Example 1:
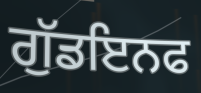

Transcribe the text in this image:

ਗੁੱਡਇਨਫ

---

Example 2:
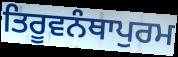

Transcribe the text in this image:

ਤਿਰੂਵਨੰਥਾਪੁਰਮ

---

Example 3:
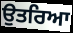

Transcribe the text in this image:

ਉਤਰਿਆ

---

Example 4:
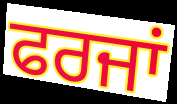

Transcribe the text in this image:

ਫਰਜਾਂ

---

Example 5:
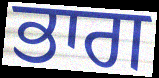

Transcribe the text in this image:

ਭਾਗ